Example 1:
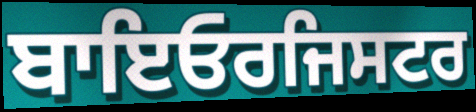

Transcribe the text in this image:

ਬਾਇਓਰਜਿਸਟਰ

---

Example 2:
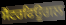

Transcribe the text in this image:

ਸੈਂਟਰਫਿਊਗਲ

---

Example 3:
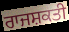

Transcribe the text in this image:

ਰਾਜਸ਼ਕਤੀ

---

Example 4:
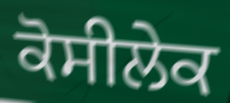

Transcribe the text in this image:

ਕੋਸੀਲੇਕ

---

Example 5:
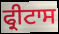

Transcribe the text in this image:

ਫ੍ਰੀਟਾਸ